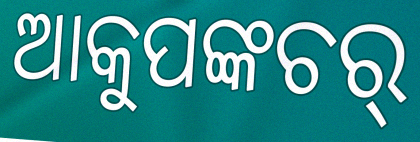
ଆକୁପଙ୍କଚର୍